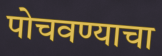
पोचवण्याचा